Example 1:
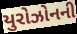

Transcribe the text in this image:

યુરોઝોનની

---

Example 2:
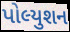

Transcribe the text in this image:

પોલ્યુશન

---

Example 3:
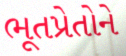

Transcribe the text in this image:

ભૂતપ્રેતોને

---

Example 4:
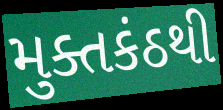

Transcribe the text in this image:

મુક્તકંઠથી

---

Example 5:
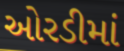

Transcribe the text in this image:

ઓરડીમાં